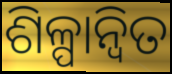
ଶିଳ୍ପାନ୍ବିତ